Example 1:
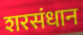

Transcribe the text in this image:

शरसंधान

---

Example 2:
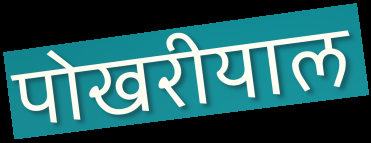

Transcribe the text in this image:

पोखरीयाल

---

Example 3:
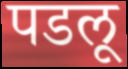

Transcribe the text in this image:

पडलू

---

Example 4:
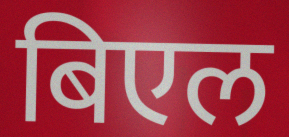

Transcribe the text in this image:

बिएल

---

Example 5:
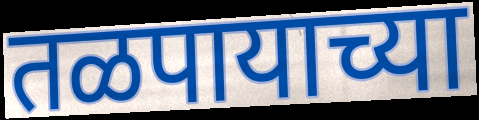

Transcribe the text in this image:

तळपायाच्या